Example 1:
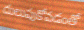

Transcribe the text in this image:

దులుపుకోవడంతో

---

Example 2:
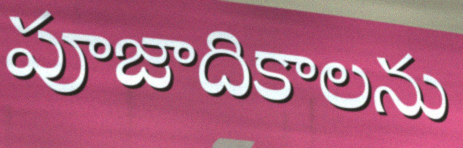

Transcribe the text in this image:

పూజాదికాలను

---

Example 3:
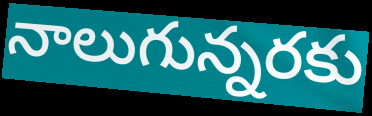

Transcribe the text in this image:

నాలుగున్నరకు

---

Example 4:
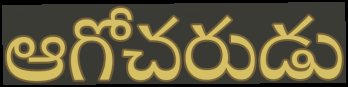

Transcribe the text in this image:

ఆగోచరుడు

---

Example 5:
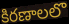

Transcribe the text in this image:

కిరణాలలొ